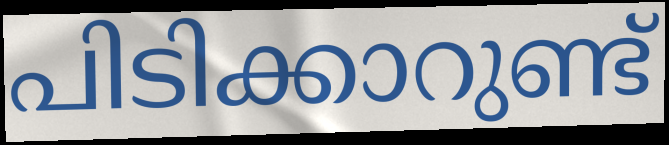
പിടിക്കാറുണ്ട്